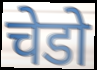
चेडो